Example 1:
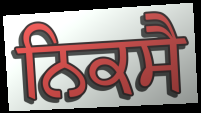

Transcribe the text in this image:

ਨਿਕਸੈ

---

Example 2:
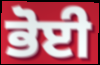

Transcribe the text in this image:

ਭੋਈ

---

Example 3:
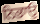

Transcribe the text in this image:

ਨਿਭਾਉ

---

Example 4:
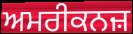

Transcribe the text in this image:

ਅਮਰੀਕਨਜ਼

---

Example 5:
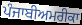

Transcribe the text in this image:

ਪੰਜਾਬੀਅਮਰੀਕਾ